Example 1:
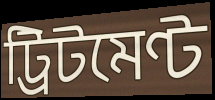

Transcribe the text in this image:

ট্রিটমেণ্ট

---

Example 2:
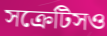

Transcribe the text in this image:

সক্রেটিসও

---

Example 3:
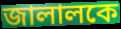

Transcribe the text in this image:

জালালকে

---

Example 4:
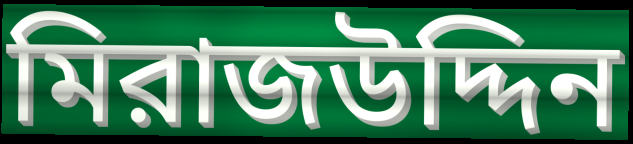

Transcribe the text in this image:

মিরাজউদ্দিন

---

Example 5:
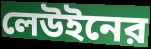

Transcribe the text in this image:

লেউইনের